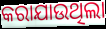
କରାଯାଉଥିଲା